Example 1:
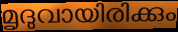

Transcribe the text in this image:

മൃദുവായിരിക്കും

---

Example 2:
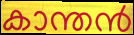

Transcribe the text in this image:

കാന്തൻ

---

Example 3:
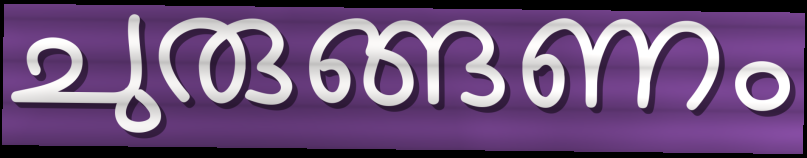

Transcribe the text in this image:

ചുരുങ്ങണം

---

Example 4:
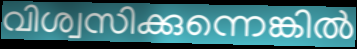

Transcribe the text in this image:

വിശ്വസിക്കുന്നെങ്കിൽ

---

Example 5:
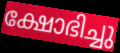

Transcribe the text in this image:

ക്ഷോഭിച്ചു